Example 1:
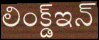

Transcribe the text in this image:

లింక్డ్ఇన్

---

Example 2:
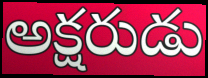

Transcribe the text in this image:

అక్షరుడు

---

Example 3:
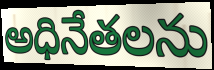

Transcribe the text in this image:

అధినేతలను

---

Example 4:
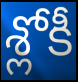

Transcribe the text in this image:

శ్లోకీ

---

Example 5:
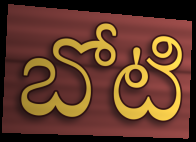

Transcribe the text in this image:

బోటి